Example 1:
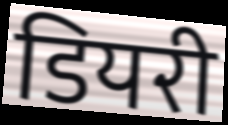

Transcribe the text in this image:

डियरी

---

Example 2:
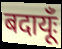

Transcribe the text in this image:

बदायूँः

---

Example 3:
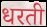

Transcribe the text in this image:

धरती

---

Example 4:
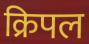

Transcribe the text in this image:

क्रिपल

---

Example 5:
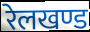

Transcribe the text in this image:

रेलखण्ड